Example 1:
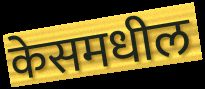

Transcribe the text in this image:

केसमधील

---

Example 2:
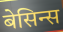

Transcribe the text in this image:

बेसिन्स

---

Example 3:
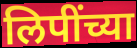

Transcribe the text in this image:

लिपींच्या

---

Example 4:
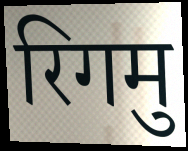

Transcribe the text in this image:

रिगमु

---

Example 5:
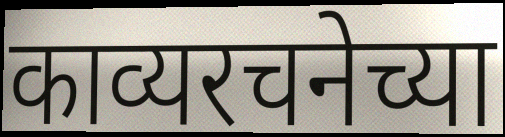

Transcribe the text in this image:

काव्यरचनेच्या